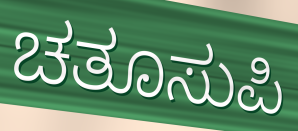
ಚತೂಸುಪಿ